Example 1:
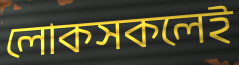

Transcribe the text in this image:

লোকসকলেই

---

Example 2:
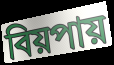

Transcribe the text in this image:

বিয়পায়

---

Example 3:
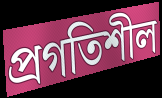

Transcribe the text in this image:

প্ৰগতিশীল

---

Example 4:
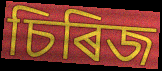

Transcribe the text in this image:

চিৰিজ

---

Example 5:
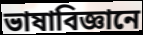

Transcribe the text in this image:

ভাষাবিজ্ঞানে